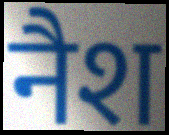
नैश